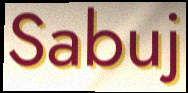
Sabuj